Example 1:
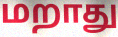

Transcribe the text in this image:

மறாது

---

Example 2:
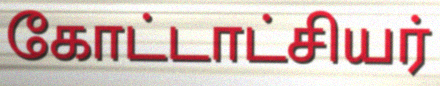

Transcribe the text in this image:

கோட்டாட்சியர்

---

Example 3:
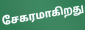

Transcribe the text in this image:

சேகரமாகிறது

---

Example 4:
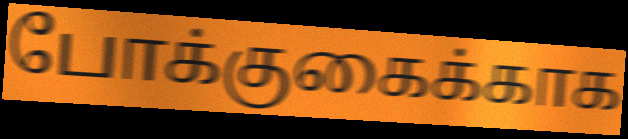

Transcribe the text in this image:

போக்குகைக்காக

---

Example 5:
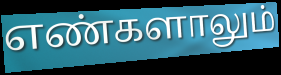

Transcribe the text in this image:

எண்களாலும்